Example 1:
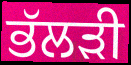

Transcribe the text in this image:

ਭੱਲੜੀ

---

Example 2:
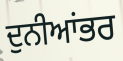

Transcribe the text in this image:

ਦੁਨੀਆਂਭਰ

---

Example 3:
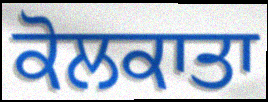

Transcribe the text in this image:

ਕੋਲਕਾਤਾ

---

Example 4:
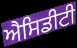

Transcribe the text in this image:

ਐਸਿਡੀਟੀ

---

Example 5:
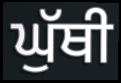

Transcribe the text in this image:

ਘੁੱਥੀ